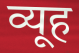
व्यूह